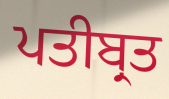
ਪਤੀਬ੍ਰਤ